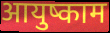
आयुष्काम